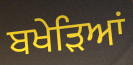
ਬਖੇੜਿਆਂ